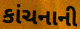
કાંચનાની